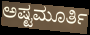
ಅಷ್ಟಮೂರ್ತಿ